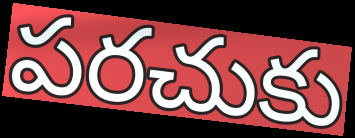
పరచుకు